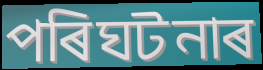
পৰিঘটনাৰ